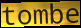
tombe